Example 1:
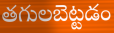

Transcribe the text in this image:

తగులబెట్టడం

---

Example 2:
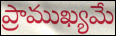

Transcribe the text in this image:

ప్రాముఖ్యమే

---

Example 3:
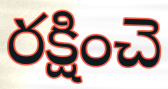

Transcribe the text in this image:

రక్షించె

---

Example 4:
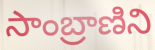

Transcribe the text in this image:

సాంబ్రాణిని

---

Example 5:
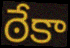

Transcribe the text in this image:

ఠేకా